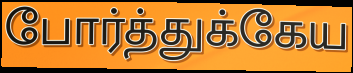
போர்த்துக்கேய